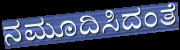
ನಮೂದಿಸಿದಂತೆ